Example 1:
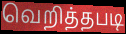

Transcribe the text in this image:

வெறித்தபடி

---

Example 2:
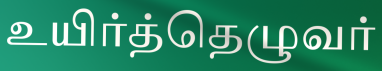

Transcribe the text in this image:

உயிர்த்தெழுவர்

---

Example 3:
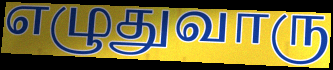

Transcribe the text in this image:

எழுதுவாரு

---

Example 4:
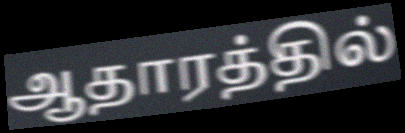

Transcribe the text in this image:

ஆதாரத்தில்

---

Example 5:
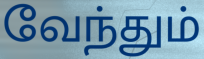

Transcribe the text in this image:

வேந்தும்